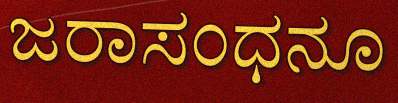
ಜರಾಸಂಧನೂ